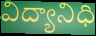
విద్యానిధి